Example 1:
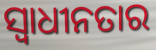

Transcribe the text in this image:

ସ୍ବାଧୀନତାର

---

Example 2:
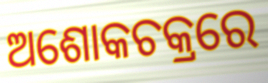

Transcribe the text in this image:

ଅଶୋକଚକ୍ରରେ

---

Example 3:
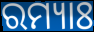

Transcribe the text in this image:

ରମ୍ୟାଃ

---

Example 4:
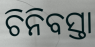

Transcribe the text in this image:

ଚିନିବସ୍ତା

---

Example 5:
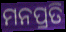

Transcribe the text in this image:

ମନପ୍ରତି